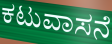
ಕಟುವಾಸನೆ